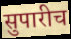
सुपारीच